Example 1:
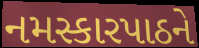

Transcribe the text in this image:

નમસ્કારપાઠને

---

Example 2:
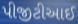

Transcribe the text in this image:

પીજીટીઆઈ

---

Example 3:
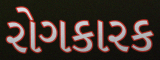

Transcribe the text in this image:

રોગકારક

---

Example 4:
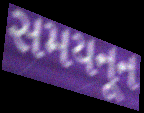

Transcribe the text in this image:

સમયનૂન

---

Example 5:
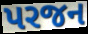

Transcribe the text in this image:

પરજન